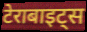
टेराबाइट्स